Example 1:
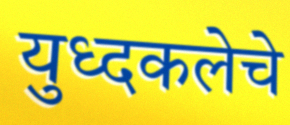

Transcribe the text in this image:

युध्दकलेचे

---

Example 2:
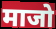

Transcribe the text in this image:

माजो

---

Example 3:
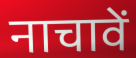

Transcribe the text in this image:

नाचावें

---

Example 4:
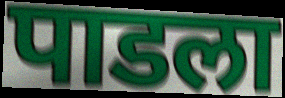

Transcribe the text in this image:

पाडला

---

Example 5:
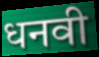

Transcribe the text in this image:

धनवी